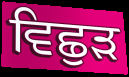
ਵਿਛੁੜ